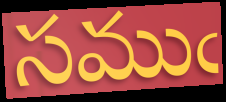
సముఁ